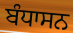
ਬੰਧਾਸਨ